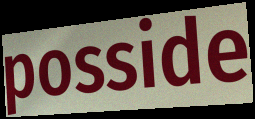
posside